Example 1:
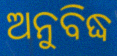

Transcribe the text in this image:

ଅନୁବିଦ୍ଧ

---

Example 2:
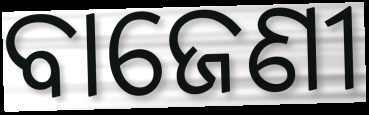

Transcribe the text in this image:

ବାଜେଣୀ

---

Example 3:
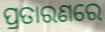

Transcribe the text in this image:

ପ୍ରତାରଣରେ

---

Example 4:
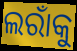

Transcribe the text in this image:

ଲରାଁକୁ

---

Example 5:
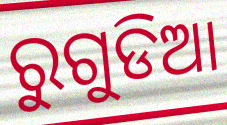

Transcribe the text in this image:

ରୁଗୁଡିଆ